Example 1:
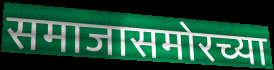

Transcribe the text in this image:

समाजासमोरच्या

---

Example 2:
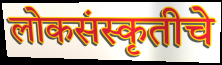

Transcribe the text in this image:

लोकसंस्कृतीचे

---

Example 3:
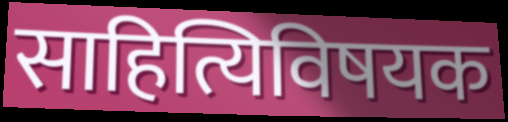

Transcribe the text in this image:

साहित्यिविषयक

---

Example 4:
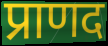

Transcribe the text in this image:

प्राणद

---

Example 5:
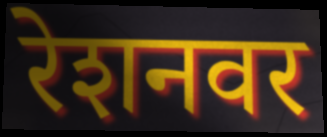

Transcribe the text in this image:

रेशनवर